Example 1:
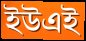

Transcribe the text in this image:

ইউএই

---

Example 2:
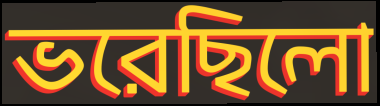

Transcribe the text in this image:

ভরেছিলো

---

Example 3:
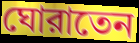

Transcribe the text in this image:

ঘোরাতেন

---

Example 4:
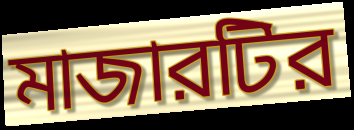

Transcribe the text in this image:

মাজারটির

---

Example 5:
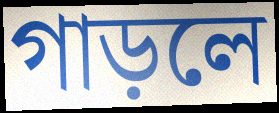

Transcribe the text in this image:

গাড়লে